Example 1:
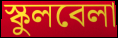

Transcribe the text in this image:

স্কুলবেলা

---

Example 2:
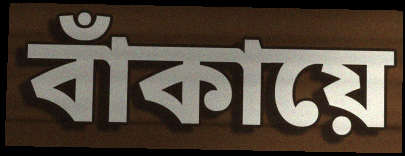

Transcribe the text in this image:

বাঁকায়ে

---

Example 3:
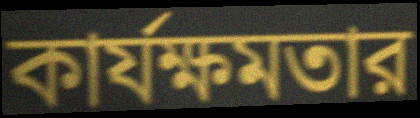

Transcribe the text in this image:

কার্যক্ষমতার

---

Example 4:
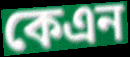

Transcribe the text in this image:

কেএন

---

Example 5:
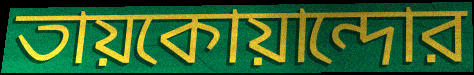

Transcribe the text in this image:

তায়কোয়ান্দোর